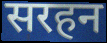
सरहन